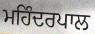
ਮਹਿੰਦਰਪਾਲ